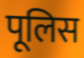
पूलिस